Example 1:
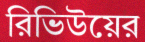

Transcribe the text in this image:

রিভিউয়ের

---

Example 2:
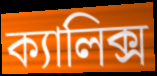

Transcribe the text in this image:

ক্যালিক্স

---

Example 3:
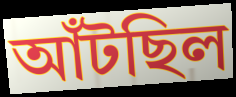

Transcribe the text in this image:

আঁটছিল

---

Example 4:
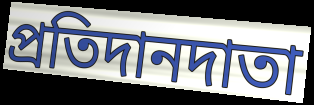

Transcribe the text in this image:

প্রতিদানদাতা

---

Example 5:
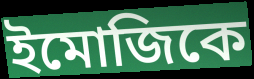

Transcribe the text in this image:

ইমোজিকে